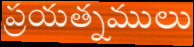
ప్రయత్నములు